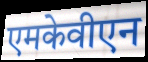
एमकेवीएन